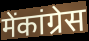
मेंकांग्रेस